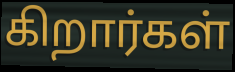
கிறார்கள்